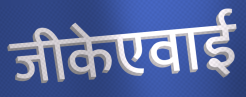
जीकेएवाई